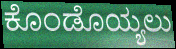
ಕೊಂಡೊಯ್ಯಲು